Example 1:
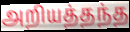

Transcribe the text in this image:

அறியத்தந்த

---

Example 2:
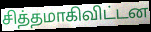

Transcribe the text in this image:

சித்தமாகிவிட்டன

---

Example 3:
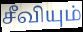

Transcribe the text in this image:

சீவியும்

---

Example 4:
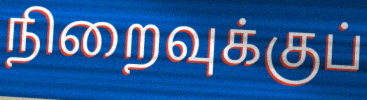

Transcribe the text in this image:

நிறைவுக்குப்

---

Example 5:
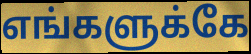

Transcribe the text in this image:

எங்களுக்கே